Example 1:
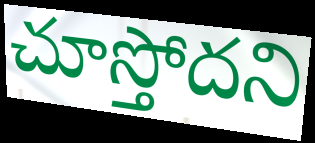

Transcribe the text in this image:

చూస్తోదని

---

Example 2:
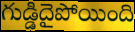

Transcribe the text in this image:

గుడ్డిదైపోయింది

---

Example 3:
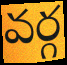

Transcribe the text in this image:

వర్గ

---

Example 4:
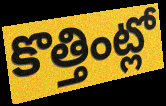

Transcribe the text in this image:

కొత్తింట్లో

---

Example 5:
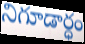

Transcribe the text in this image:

నిగూడార్ధం